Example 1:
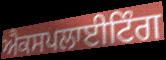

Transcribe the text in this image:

ਐਕਸਪਲਾਈਟਿੰਗ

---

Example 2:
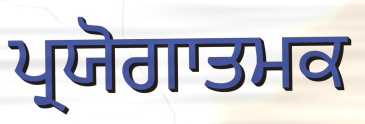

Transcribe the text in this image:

ਪ੍ਰਯੋਗਾਤਮਕ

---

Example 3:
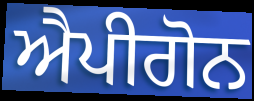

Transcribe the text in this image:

ਐਪੀਗੋਨ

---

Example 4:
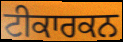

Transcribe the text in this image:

ਟੀਕਾਰਕਨ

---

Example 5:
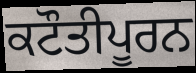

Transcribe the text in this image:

ਕਟੌਤੀਪੂਰਨ